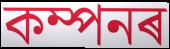
কম্পনৰ